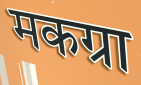
मकग्रा